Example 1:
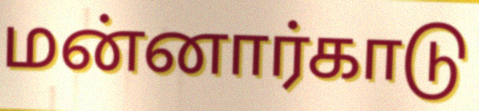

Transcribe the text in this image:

மன்னார்காடு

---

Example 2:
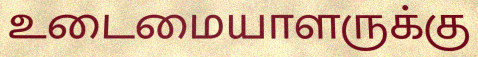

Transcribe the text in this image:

உடைமையாளருக்கு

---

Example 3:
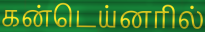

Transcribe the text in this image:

கன்டெய்னரில்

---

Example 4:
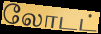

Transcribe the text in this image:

லோடட்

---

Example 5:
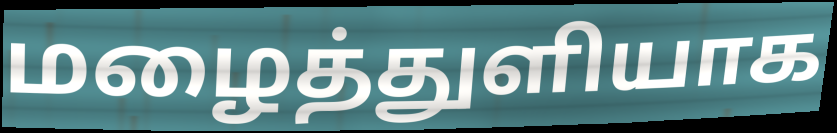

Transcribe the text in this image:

மழைத்துளியாக